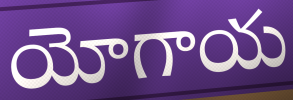
యోగాయ